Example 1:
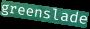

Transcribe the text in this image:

greenslade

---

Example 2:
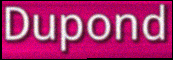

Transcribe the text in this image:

Dupond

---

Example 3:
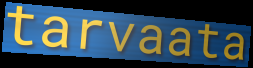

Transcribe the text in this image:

tarvaata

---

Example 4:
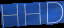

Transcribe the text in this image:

HHD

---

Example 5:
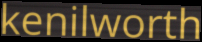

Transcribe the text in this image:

kenilworth